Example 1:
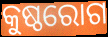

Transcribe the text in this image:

କୁଷ୍ଠରୋଗ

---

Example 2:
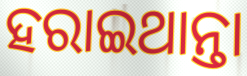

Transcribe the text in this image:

ହରାଇଥାନ୍ତା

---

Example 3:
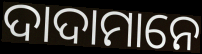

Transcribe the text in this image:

ଦାଦାମାନେ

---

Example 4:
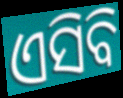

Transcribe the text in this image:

ଏସିବି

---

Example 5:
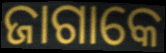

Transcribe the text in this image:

ଜାଗାକେ